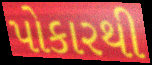
પોકારથી